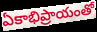
ఏకాభిప్రాయంతో